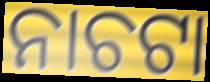
ନାଚଟା